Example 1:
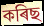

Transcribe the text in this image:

কৰিছ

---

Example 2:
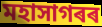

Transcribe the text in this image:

মহাসাগৰৰ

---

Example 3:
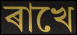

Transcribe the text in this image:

ৰাখে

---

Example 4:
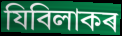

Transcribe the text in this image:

যিবিলাকৰ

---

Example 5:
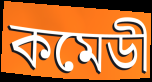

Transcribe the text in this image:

কমেডী